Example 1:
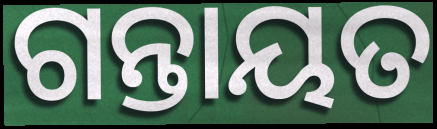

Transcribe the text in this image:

ଗନ୍ତାୟତ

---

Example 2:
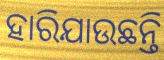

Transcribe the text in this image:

ହାରିଯାଉଛନ୍ତି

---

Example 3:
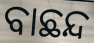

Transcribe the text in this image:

ବାଛନ୍ଦ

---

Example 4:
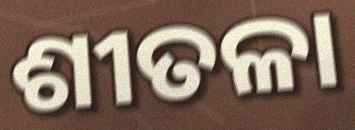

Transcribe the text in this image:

ଶୀତଳା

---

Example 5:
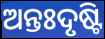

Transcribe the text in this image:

ଅନ୍ତଃଦୃଷ୍ଟି